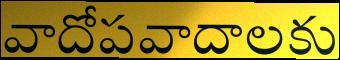
వాదోపవాదాలకు